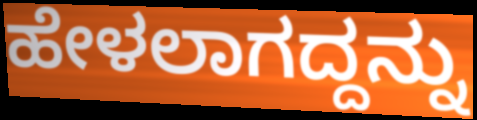
ಹೇಳಲಾಗದ್ದನ್ನು